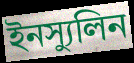
ইনস্যুলিন